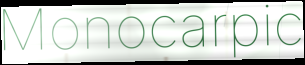
Monocarpic